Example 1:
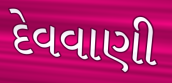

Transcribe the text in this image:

દેવવાણી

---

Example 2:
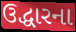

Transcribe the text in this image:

ઉદ્ધારના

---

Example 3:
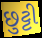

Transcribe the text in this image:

છુટ્ટી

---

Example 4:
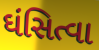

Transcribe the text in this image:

ઘંસિત્વા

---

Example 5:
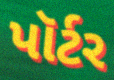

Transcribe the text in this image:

પૉર્ટર